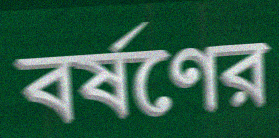
বর্ষণের